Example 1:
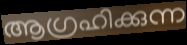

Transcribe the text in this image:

ആഗ്രഹിക്കുന്ന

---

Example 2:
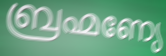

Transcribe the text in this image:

ബ്രഹ്മണ്യേ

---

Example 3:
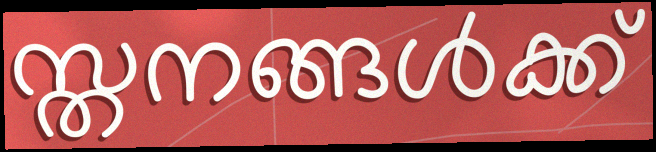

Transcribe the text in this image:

സ്തനങ്ങൾക്ക്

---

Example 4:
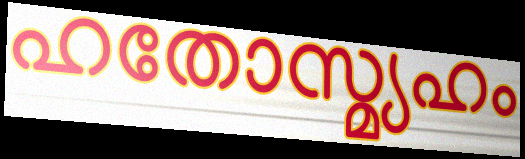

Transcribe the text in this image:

ഹതോസ്മ്യഹം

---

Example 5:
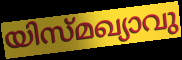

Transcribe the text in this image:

യിസ്മഖ്യാവു